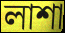
লাশা